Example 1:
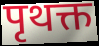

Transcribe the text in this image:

पृथक्त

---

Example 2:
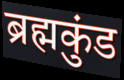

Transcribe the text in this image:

ब्रह्मकुंड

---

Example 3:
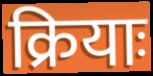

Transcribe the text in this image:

क्रियाः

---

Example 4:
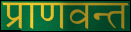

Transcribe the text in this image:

प्राणवन्त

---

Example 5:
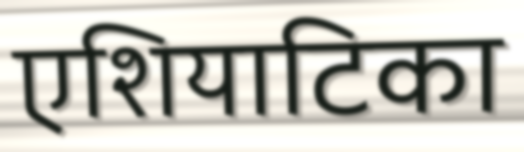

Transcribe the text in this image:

एशियाटिका